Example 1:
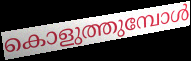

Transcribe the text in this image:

കൊളുത്തുമ്പോൾ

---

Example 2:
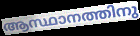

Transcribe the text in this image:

ആസ്ഥാനത്തിനു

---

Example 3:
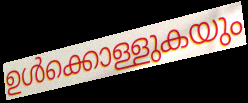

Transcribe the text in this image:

ഉൾക്കൊള്ളുകയും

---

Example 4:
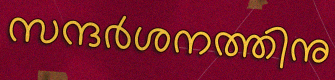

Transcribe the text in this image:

സന്ദർശനത്തിനു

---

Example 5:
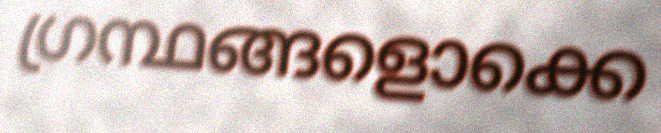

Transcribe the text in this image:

ഗ്രന്ഥങ്ങളൊക്കെ